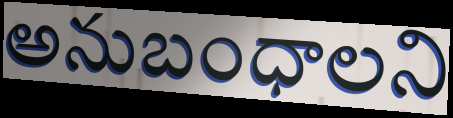
అనుబంధాలని